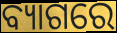
ବ୍ୟାଗରେ